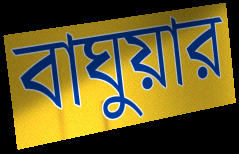
বাঘুয়ার